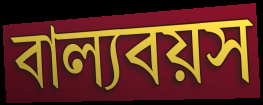
বাল্যবয়স